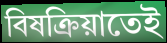
বিষক্রিয়াতেই